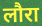
लौरा